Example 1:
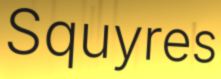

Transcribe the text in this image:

Squyres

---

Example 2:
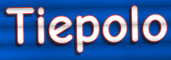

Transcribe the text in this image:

Tiepolo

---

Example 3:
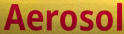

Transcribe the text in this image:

Aerosol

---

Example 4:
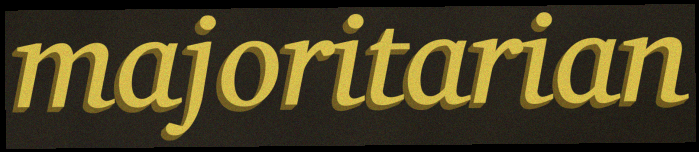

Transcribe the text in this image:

majoritarian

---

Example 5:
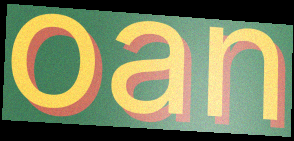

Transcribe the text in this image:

oan